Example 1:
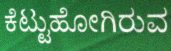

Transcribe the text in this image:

ಕೆಟ್ಟುಹೋಗಿರುವ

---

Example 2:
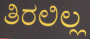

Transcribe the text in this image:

ತಿರಲಿಲ್ಲ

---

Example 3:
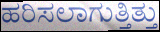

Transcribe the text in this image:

ಹರಿಸಲಾಗುತ್ತಿತ್ತು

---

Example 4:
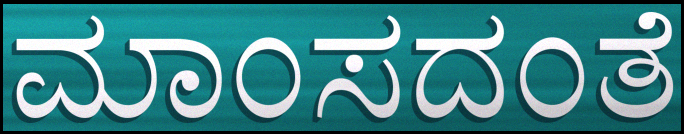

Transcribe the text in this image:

ಮಾಂಸದಂತೆ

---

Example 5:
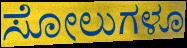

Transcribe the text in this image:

ಸೋಲುಗಳೂ